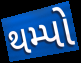
થમ્પો